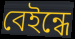
বেইন্ধে